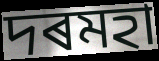
দৰমহা